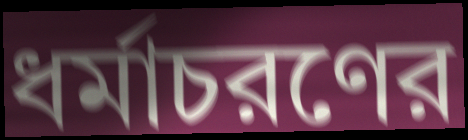
ধর্মাচরণের